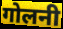
गोलनी